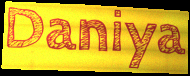
Daniya